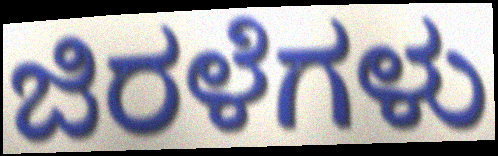
ಜಿರಳೆಗಳು